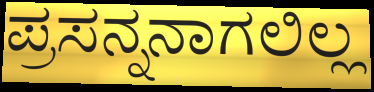
ಪ್ರಸನ್ನನಾಗಲಿಲ್ಲ